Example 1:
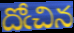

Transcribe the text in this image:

దోఁచిన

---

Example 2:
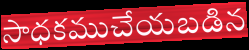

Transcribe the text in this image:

సాధకముచేయబడిన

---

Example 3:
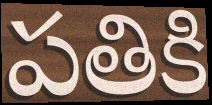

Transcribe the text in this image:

పతికి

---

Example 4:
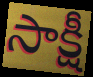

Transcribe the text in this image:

సాక్షీ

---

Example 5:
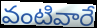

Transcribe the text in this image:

వంటివారే